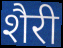
शैरी